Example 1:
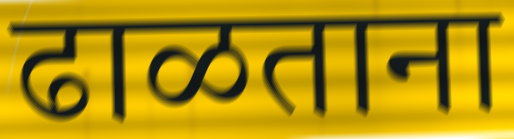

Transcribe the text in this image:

ढाळताना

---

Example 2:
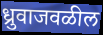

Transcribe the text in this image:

ध्रुवाजवळील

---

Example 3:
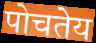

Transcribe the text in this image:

पोचतेय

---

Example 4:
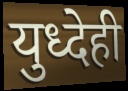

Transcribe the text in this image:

युध्देही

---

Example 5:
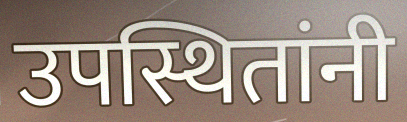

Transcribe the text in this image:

उपस्थितांनी